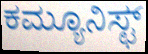
ಕಮ್ಯೂನಿಸ್ಟ್